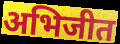
अभिजीत